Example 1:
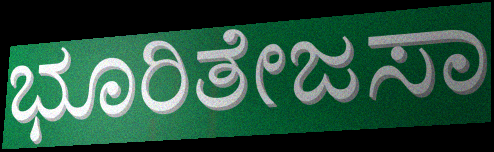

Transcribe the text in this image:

ಭೂರಿತೇಜಸಾ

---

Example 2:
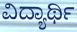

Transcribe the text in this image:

ವಿದ್ಯಾರ್ಥಿ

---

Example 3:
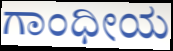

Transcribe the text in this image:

ಗಾಂಧೀಯ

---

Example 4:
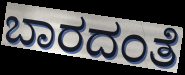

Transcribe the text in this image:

ಬಾರದಂತೆ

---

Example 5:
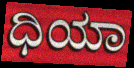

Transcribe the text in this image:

ಧಿಯಾ